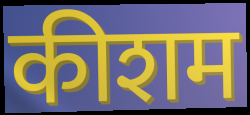
कीशम